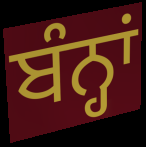
ਬੰਨ੍ਹਾਂ